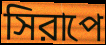
সিরাপে